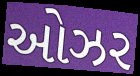
ઓઝર